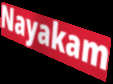
Nayakam